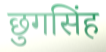
छुगसिंह